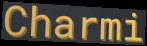
Charmi